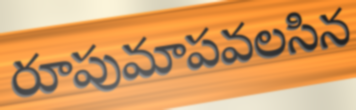
రూపుమాపవలసిన